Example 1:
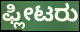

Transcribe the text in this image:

ಫ್ಲೀಟರು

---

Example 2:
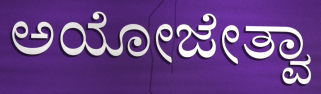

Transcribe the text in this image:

ಅಯೋಜೇತ್ವಾ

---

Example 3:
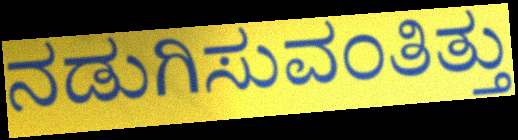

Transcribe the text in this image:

ನಡುಗಿಸುವಂತಿತ್ತು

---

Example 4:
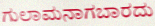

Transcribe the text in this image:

ಗುಲಾಮನಾಗಬಾರದು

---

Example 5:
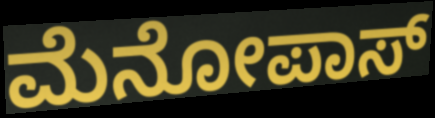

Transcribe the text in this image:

ಮೆನೋಪಾಸ್